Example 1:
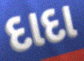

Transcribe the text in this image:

દાદા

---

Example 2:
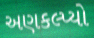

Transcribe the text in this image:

અણકલ્પ્યો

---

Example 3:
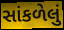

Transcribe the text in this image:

સાંકળેલું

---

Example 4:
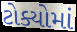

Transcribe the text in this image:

ટોક્યોમાં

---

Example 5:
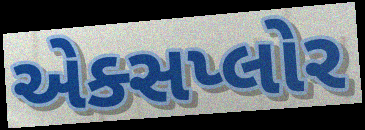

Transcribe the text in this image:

એક્સપ્લોર